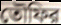
তৌফির